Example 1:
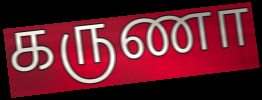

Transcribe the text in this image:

கருணா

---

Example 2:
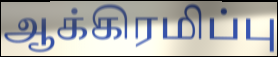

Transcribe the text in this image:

ஆக்கிரமிப்பு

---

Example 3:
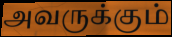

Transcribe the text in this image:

அவருக்கும்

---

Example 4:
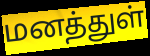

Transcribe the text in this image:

மனத்துள்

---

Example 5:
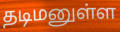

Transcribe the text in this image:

தடிமனுள்ள